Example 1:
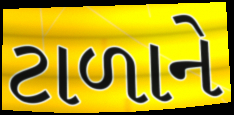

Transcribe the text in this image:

ટાળાને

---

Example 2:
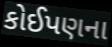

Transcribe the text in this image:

કોઈપણના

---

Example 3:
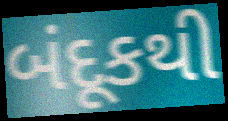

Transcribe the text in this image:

બંદૂકથી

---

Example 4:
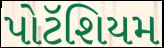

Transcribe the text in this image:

પોટૅશિયમ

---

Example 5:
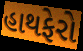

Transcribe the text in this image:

હાથફેરો